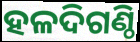
ହଳଦିଗଣ୍ଠି